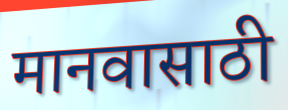
मानवासाठी